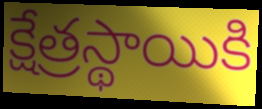
క్షేత్రస్థాయికి